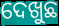
ଦେଖୁଛ